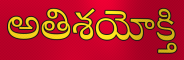
అతిశయోక్తి